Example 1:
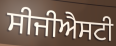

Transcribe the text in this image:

ਸੀਜੀਐਸਟੀ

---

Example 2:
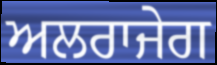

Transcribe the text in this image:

ਅਲਰਾਜੇਗ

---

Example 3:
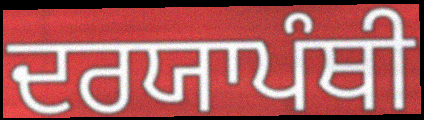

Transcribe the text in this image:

ਦਰਯਾਪੰਥੀ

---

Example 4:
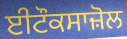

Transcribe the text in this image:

ਈਟੌਕਸਾਜ਼ੋਲ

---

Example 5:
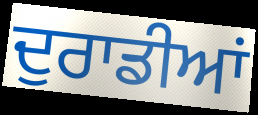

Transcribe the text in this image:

ਦੁਰਾਡੀਆਂ